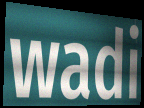
wadi